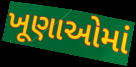
ખૂણાઓમાં